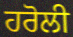
ਹਰੋਲੀ